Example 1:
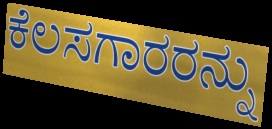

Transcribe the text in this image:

ಕೆಲಸಗಾರರನ್ನು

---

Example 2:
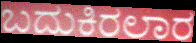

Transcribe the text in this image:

ಬದುಕಿರಲಾರ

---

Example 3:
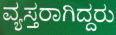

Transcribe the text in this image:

ವ್ಯಸ್ತರಾಗಿದ್ದರು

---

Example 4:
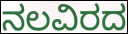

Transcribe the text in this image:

ನಲವಿರದ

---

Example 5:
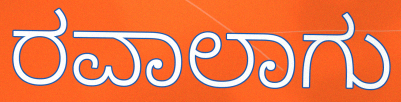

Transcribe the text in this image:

ರವಾಲಾಗು